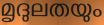
മൃദുലതയും